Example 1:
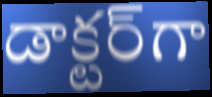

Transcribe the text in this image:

డాక్టర్‌గా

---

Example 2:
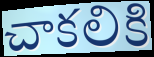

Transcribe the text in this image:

చాకలికి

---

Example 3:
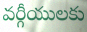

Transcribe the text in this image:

వర్గీయులకు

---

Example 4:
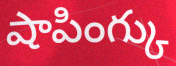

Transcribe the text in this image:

షాపింగ్కు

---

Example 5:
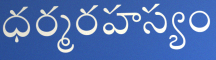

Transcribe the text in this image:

ధర్మరహస్యం